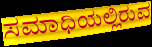
ಸಮಾಧಿಯಲ್ಲಿರುವ